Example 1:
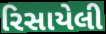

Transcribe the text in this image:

રિસાયેલી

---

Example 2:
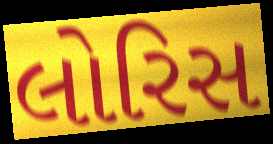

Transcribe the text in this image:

લોરિસ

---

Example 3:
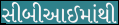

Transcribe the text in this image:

સીબીઆઈમાંથી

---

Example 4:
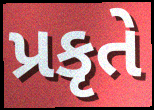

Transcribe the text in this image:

પ્રકૃતે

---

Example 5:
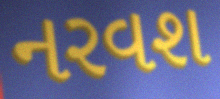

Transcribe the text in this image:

નરવશ